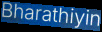
Bharathiyin